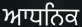
ਆਧਨਿਕ